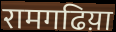
रामगढिय़ा